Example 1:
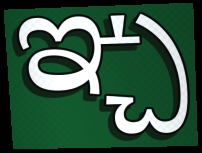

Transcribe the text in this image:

ఞ్చ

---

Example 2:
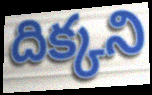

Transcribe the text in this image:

దిక్కని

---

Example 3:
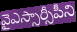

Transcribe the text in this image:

వైఎస్సార్సీపీని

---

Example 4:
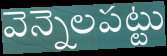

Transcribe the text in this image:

వెన్నెలపట్టు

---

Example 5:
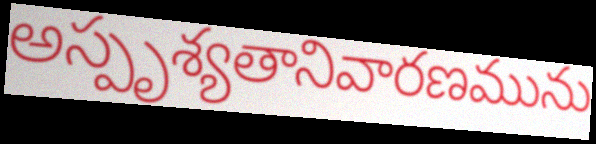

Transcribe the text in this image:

అస్పృశ్యతానివారణమును